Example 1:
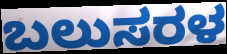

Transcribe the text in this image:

ಬಲುಸರಳ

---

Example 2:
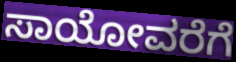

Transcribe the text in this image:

ಸಾಯೋವರೆಗೆ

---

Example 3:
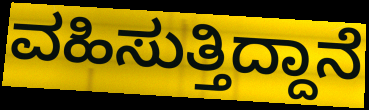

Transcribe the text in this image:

ವಹಿಸುತ್ತಿದ್ದಾನೆ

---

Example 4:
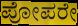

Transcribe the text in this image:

ಪೋಪರೇ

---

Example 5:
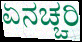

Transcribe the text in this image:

ಏನಚ್ಚರಿ